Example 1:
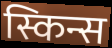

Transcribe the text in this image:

स्किन्स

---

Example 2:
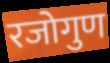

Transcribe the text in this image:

रजोगुण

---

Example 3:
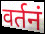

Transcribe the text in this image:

वर्तनं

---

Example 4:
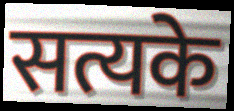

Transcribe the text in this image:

सत्यके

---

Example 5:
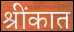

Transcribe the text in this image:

श्रींकात